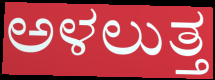
ಅಳಲುತ್ತ